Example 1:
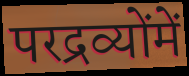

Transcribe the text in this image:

परद्रव्योंमें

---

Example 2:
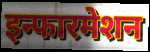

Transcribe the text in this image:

इन्फारमेशन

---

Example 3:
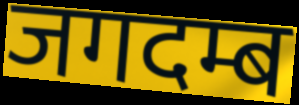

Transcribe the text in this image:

जगदम्ब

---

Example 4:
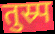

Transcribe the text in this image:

तुस्र्प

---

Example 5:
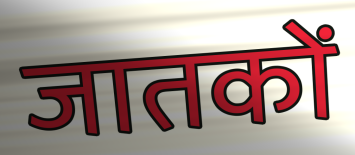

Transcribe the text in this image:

जातकों